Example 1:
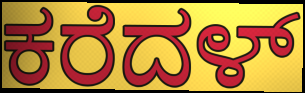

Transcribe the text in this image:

ಕರೆದಳ್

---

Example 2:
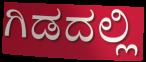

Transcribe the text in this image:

ಗಿಡದಲ್ಲಿ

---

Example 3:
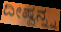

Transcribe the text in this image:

ದೀಷ್ವನ್ನ್ನ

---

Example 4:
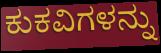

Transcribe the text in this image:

ಕುಕವಿಗಳನ್ನು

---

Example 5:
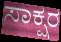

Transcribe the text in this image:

ಸಾಕ್ಷರ